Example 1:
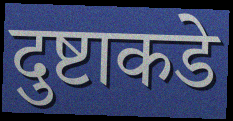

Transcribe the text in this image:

दुष्टाकडे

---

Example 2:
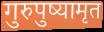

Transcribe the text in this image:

गुरुपुष्यामृत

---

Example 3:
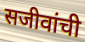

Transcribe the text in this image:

सजीवांची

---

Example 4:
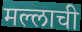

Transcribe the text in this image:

मल्लाची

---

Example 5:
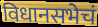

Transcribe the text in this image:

विधानसभेचं